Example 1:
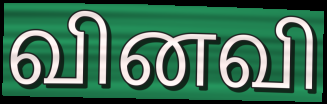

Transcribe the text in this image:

வினவி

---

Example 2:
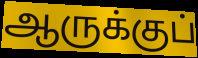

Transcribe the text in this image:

ஆருக்குப்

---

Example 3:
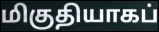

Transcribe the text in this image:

மிகுதியாகப்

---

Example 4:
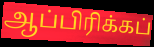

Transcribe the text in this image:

ஆப்பிரிக்கப்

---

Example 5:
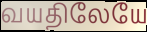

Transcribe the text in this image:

வயதிலேயே